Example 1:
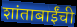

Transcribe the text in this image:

शांताबाईंची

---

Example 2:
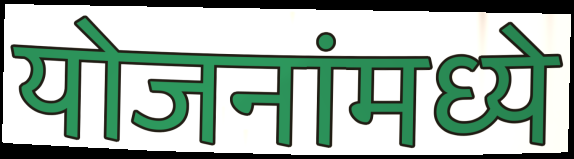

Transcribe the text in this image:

योजनांमध्ये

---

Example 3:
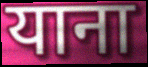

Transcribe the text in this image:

याना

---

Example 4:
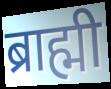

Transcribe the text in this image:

ब्राह्मी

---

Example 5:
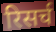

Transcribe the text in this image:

रिसर्च